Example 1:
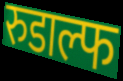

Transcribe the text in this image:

रुडाल्फ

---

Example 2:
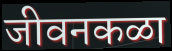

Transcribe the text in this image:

जीवनकळा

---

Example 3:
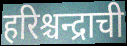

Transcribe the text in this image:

हरिश्चन्द्राची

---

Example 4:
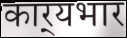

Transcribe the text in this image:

कार्यभार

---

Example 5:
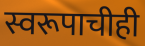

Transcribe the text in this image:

स्वरूपाचीही